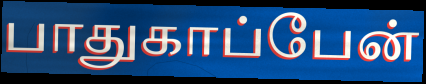
பாதுகாப்பேன்